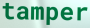
tamper